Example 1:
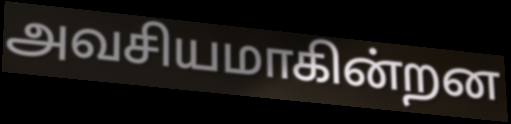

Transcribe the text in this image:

அவசியமாகின்றன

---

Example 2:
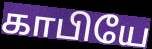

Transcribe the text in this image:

காபியே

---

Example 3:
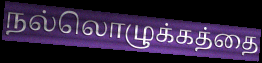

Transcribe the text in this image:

நல்லொழுக்கத்தை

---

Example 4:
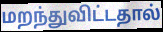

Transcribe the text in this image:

மறந்துவிட்டதால்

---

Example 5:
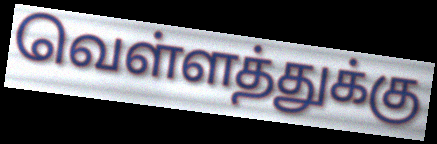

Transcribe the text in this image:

வெள்ளத்துக்கு